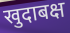
खुदाबक्ष